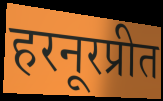
हरनूरप्रीत